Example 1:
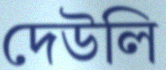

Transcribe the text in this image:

দেউলি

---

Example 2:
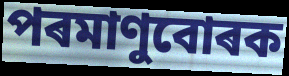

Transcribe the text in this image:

পৰমাণুবোৰক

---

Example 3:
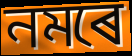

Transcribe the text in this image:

নমৰে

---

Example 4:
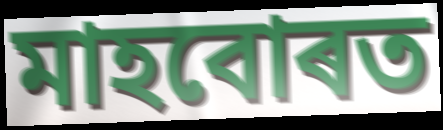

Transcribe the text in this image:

মাহবোৰত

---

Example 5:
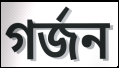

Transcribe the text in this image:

গৰ্জন